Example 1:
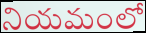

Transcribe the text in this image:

నియమంలో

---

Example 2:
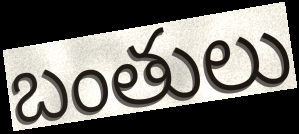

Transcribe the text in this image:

బంతులు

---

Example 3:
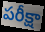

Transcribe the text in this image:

పరీక్షా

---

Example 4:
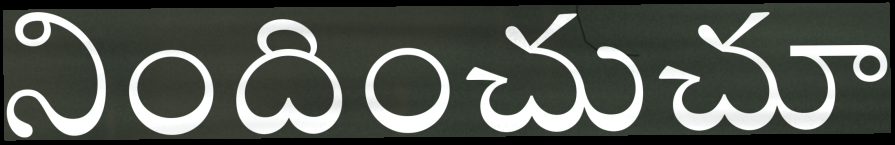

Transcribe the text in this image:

నిందించుచూ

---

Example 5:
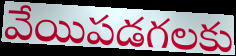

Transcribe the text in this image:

వేయిపడగలకు